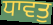
ਧਾਵਤੁ